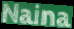
Naina